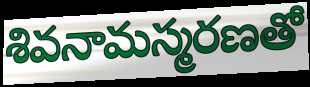
శివనామస్మరణతో